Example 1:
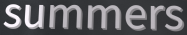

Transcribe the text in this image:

summers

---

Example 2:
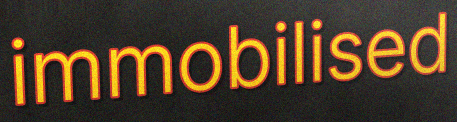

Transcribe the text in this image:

immobilised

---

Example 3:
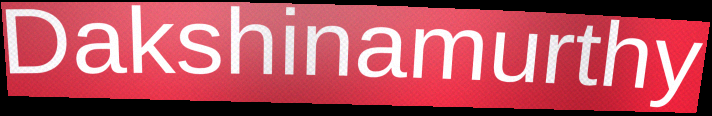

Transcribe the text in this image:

Dakshinamurthy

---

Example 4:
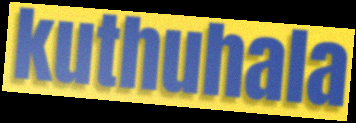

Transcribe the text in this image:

kuthuhala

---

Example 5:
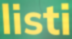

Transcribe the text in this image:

listi